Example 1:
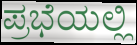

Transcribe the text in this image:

ಪ್ರಭೆಯಲ್ಲಿ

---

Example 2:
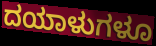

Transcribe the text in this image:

ದಯಾಳುಗಳೂ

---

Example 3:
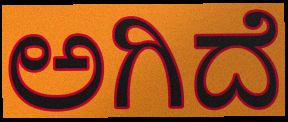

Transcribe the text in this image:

ಅಗಿದೆ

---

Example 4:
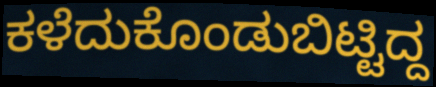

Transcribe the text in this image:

ಕಳೆದುಕೊಂಡುಬಿಟ್ಟಿದ್ದ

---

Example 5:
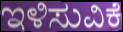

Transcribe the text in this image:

ಇಳಿಸುವಿಕೆ